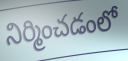
నిర్మించడంలో